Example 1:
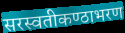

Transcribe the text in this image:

सरस्वतीकण्ठाभरण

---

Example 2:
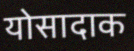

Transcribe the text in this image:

योसादाक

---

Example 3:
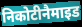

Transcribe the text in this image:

निकोटीनैमाइड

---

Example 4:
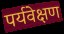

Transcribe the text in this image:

पर्यवेक्षण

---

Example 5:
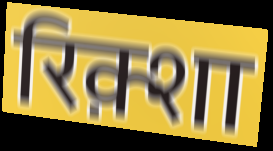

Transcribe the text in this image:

रिक़्शा